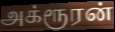
அக்ரூரன்